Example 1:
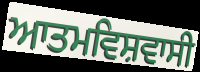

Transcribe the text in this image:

ਆਤਮਵਿਸ਼ਵਾਸੀ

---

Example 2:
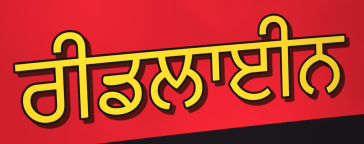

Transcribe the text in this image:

ਰੀਡਲਾਈਨ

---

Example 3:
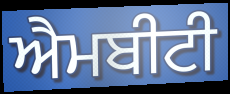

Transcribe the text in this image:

ਐਮਬੀਟੀ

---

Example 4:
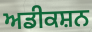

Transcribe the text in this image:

ਅਡੀਕਸ਼ਨ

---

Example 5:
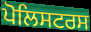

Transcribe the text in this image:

ਪੋਲਿਸਟਰਸ